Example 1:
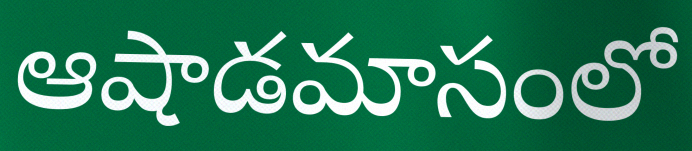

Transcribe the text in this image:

ఆషాడమాసంలో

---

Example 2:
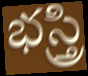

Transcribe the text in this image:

భస్త్రి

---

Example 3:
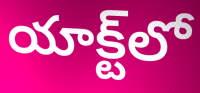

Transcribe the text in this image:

యాక్ట్‌లో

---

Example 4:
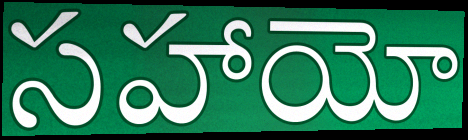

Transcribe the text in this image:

సహాయో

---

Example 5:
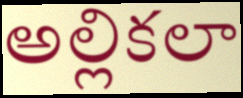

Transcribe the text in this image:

అల్లికలా